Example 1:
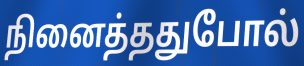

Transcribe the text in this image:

நினைத்ததுபோல்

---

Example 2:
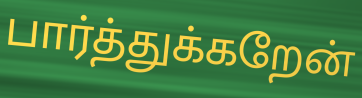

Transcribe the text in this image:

பார்த்துக்கறேன்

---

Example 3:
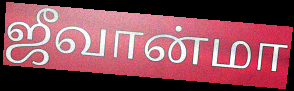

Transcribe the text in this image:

ஜீவான்மா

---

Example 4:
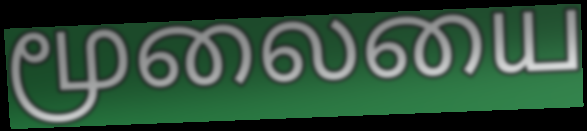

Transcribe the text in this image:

மூலையை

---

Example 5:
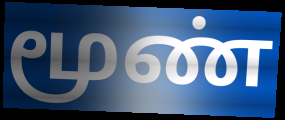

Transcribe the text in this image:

மூண்